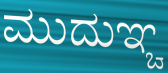
ಮುದುಞ್ಚ